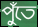
পুঁতে